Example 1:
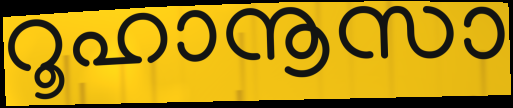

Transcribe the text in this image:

റൂഹാനൂസാ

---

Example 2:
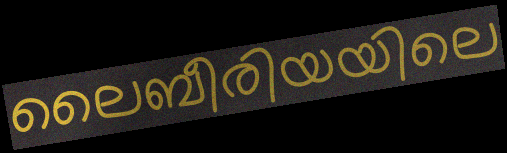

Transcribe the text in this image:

ലൈബീരിയയിലെ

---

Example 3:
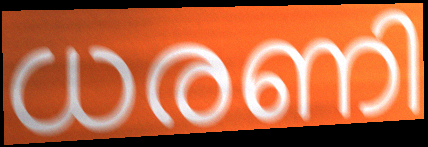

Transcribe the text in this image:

ധരണി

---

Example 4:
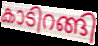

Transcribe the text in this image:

കാടിറങ്ങി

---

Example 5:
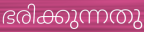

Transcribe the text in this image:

ഭരിക്കുന്നതു